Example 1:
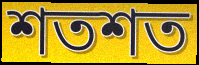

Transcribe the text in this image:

শতশত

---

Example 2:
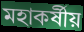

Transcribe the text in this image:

মহাকর্ষীয়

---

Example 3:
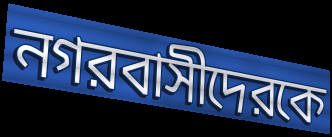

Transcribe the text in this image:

নগরবাসীদেরকে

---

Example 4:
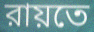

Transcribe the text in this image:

রায়তে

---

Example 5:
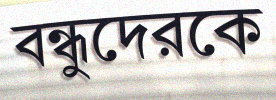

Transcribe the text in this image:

বন্ধুদেরকে